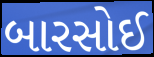
બારસોઈ